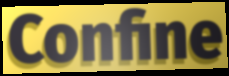
Confine